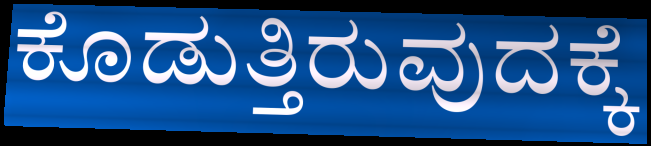
ಕೊಡುತ್ತಿರುವುದಕ್ಕೆ